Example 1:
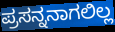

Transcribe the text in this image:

ಪ್ರಸನ್ನನಾಗಲಿಲ್ಲ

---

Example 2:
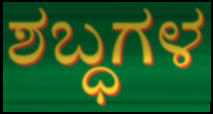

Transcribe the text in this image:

ಶಬ್ಧಗಳ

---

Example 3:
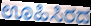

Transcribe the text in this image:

ಊಹಿಸಿರದ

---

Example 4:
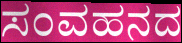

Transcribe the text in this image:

ಸಂವಹನದ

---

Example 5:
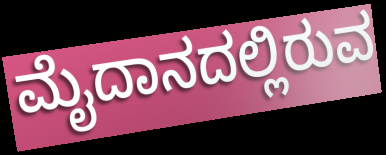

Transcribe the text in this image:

ಮೈದಾನದಲ್ಲಿರುವ